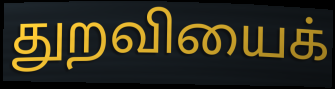
துறவியைக்